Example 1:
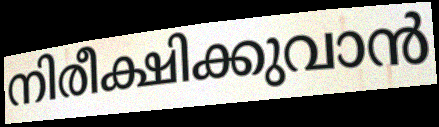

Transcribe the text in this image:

നിരീക്ഷിക്കുവാൻ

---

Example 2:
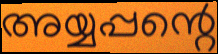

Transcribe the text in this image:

അയ്യപ്പന്റെ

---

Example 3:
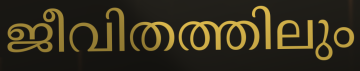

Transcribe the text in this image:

ജീവിതത്തിലും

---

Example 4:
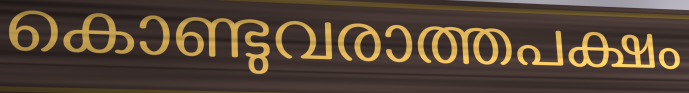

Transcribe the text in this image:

കൊണ്ടുവരാത്തപക്ഷം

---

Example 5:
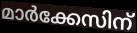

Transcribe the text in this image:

മാർക്കേസിന്